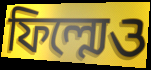
ফিল্মেও